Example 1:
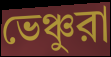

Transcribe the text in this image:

ভেঞ্চুরা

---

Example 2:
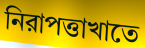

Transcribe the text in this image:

নিরাপত্তাখাতে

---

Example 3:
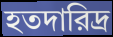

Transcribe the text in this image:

হতদারিদ্র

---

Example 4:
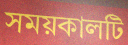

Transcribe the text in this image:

সময়কালটি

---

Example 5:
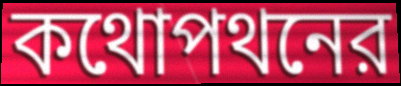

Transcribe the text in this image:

কথোপথনের